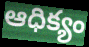
ఆధిక్యం